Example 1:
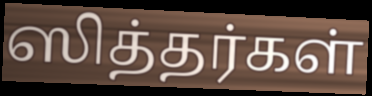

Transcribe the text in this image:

ஸித்தர்கள்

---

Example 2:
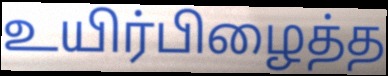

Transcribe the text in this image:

உயிர்பிழைத்த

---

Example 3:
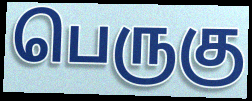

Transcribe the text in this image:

பெருகு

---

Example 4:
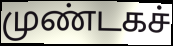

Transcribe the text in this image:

முண்டகச்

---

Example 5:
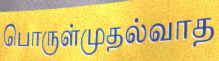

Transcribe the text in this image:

பொருள்முதல்வாத